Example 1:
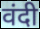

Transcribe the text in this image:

वंदी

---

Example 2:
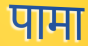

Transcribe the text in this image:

पामा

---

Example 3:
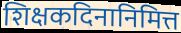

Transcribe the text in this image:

शिक्षकदिनानिमित्त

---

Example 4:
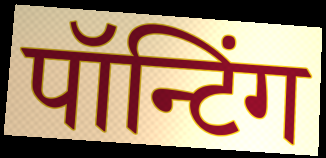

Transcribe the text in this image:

पॉन्टिंग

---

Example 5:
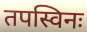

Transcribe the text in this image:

तपस्विनः